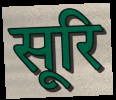
सूरि